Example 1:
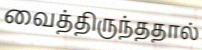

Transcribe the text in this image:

வைத்திருந்ததால்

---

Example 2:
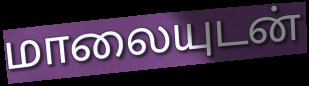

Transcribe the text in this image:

மாலையுடன்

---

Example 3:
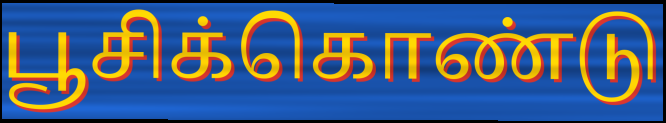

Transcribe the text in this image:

பூசிக்கொண்டு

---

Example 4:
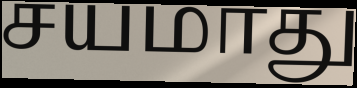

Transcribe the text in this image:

சயமாது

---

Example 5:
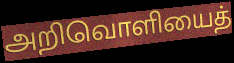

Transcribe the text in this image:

அறிவொளியைத்